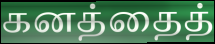
கனத்தைத்